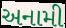
અનામી